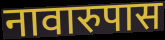
नावारुपास